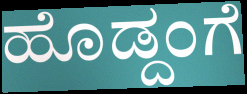
ಹೊಡ್ದಂಗೆ